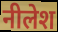
नीलेश